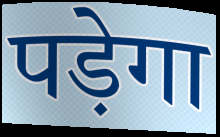
पड़ेगा